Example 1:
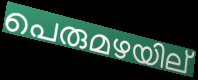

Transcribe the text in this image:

പെരുമഴയില്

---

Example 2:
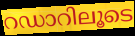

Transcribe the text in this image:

റഡാറിലൂടെ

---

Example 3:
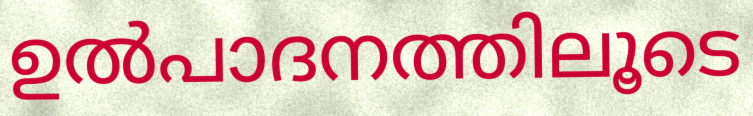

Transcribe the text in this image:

ഉൽപാദനത്തിലൂടെ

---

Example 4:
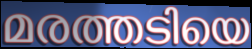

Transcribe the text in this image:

മരത്തടിയെ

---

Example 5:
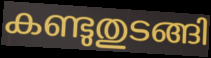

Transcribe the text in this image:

കണ്ടുതുടങ്ങി